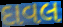
દાવલ